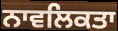
ਨਾਵਲਿਕਤਾ